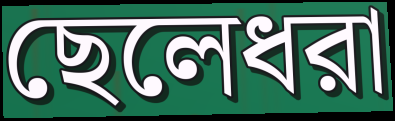
ছেলেধরা